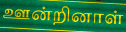
ஊன்றினாள்